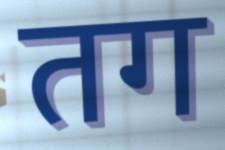
तग